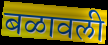
बळावली